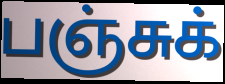
பஞ்சுக்